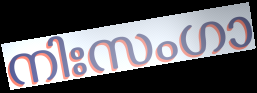
നിഃസംഗാ